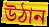
উঠান